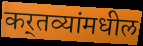
कर्तव्यांमधील